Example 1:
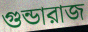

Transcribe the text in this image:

গুন্ডারাজ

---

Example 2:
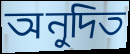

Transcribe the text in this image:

অনুদিত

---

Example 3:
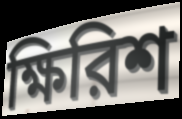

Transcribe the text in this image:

ক্ষিরিশ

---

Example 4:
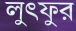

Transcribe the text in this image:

লুৎফুর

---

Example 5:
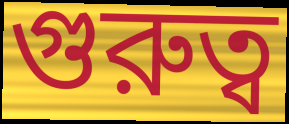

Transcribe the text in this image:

গুরুত্ব